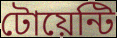
টোয়েন্টি